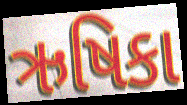
ઋષિકા